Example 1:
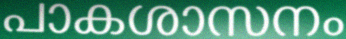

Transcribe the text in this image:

പാകശാസനം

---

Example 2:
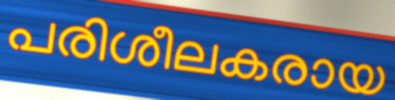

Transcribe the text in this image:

പരിശീലകരായ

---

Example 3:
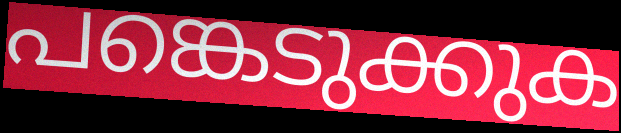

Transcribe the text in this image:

പങ്കെടുക്കുക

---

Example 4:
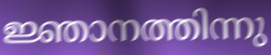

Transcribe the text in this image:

ജ്ഞാനത്തിന്നു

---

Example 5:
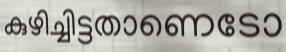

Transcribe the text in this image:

കുഴിച്ചിട്ടതാണെടോ